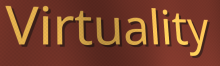
Virtuality